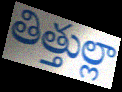
తిత్తుల్లా